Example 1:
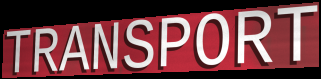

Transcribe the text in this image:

TRANSPORT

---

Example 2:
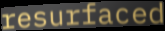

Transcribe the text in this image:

resurfaced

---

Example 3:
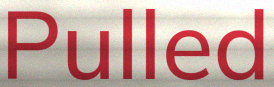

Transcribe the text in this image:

Pulled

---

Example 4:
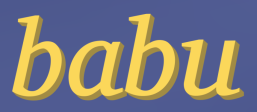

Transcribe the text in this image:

babu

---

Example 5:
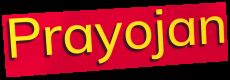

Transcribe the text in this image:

Prayojan